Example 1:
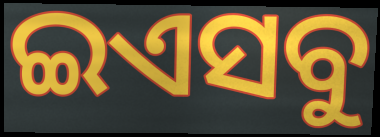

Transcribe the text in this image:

ଇଏସବୁ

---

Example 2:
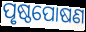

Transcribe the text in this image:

ପୃଷ୍ଠପୋଷଣ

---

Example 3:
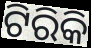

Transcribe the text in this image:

ଟିରିକି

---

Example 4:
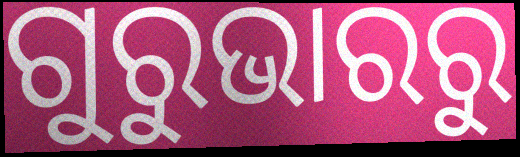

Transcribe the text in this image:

ଗୁରୁଭାରରୁ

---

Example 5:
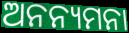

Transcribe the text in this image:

ଅନନ୍ୟମନା